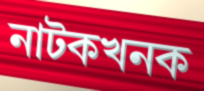
নাটকখনক